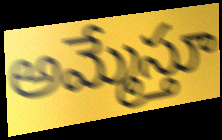
అమ్మేస్తూ